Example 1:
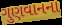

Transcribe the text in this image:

ગુણવાનના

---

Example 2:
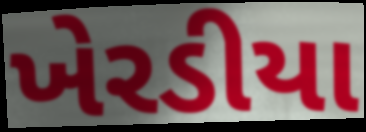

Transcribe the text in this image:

ખેરડીયા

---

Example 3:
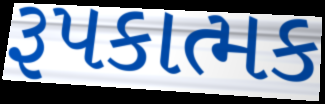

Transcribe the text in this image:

રૂપકાત્મક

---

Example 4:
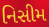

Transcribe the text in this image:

નિસીમ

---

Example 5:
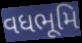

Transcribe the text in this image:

વધભૂમિ